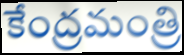
కేంద్రమంత్రి